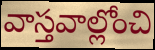
వాస్తవాల్లోంచి